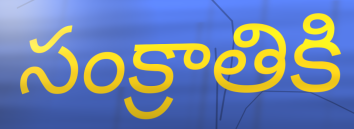
సంక్రాతికి